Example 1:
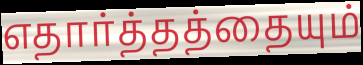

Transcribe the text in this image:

எதார்த்தத்தையும்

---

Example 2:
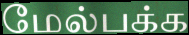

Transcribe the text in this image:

மேல்பக்க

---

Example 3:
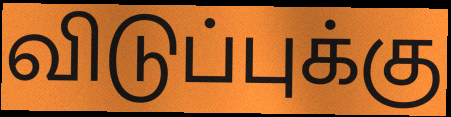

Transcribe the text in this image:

விடுப்புக்கு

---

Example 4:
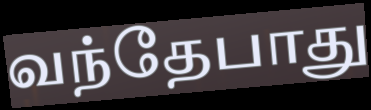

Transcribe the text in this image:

வந்தேபாது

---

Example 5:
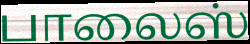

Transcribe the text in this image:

பாலைஸ்